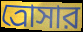
ত্রোসার